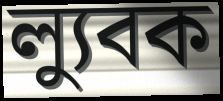
ল্যুবক